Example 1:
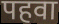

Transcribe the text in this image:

पहवा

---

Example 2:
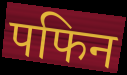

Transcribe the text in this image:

पफिन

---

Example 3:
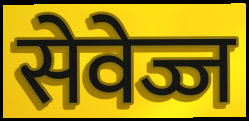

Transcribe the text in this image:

सेवेज्ज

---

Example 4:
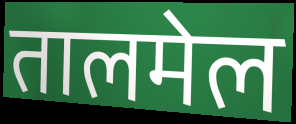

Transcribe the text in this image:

तालमेल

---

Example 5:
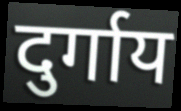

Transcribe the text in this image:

दुर्गाय